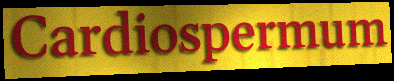
Cardiospermum